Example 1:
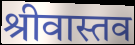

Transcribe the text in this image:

श्रीवास्‍तव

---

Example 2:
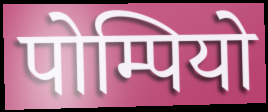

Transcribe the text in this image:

पोम्पियो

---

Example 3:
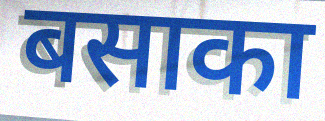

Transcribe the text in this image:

बसाका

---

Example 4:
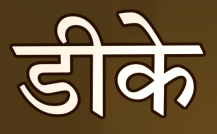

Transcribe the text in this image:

डीके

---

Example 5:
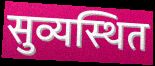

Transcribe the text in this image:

सुव्यस्थित